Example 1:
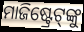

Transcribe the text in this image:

ମାଜିଷ୍ଟ୍ରେଟ୍‌ଙ୍କୁ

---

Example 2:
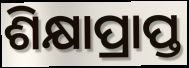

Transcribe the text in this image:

ଶିକ୍ଷାପ୍ରାପ୍ତ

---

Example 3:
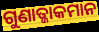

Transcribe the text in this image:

ଗୁଣାତ୍ଜାକମାନ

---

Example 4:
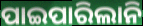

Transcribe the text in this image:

ପାଇପାରିଲାନି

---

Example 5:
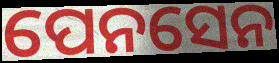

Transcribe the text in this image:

ପେନସେନ